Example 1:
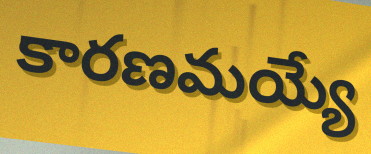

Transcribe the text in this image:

కారణమయ్యే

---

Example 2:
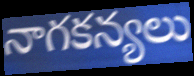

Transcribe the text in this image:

నాగకన్యలు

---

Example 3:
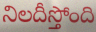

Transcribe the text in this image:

నిలదీస్తోంది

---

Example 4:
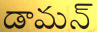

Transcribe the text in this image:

డామన్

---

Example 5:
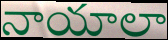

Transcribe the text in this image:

నాయాలా